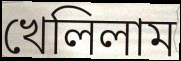
খেলিলাম